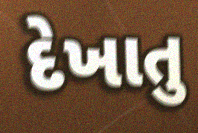
દેખાતુ